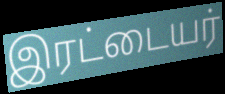
இரட்டையர்